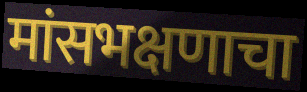
मांसभक्षणाचा